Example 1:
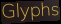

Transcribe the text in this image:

Glyphs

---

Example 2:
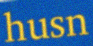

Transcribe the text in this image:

husn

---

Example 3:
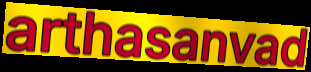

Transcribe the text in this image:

arthasanvad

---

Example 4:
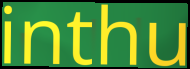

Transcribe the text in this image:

inthu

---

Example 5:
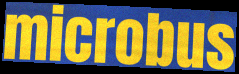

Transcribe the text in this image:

microbus